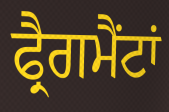
ਫ੍ਰੈਗਮੈਂਟਾਂ